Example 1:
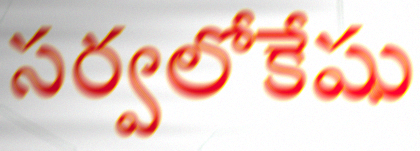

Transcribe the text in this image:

సర్వలోకేషు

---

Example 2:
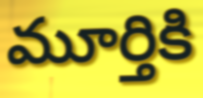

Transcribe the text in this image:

మూర్తికి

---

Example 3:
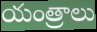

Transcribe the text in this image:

యంత్రాలు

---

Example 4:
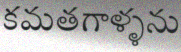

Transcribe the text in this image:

కమతగాళ్ళను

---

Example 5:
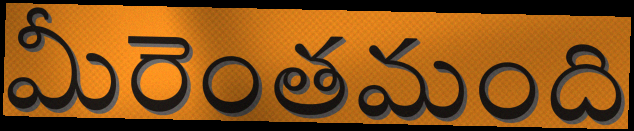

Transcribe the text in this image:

మీరెంతమంది